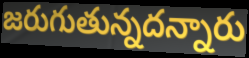
జరుగుతున్నదన్నారు